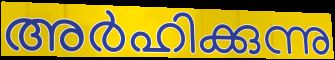
അർഹിക്കുന്നു